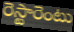
రెస్టారెంటు